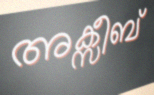
അക്സീബ്